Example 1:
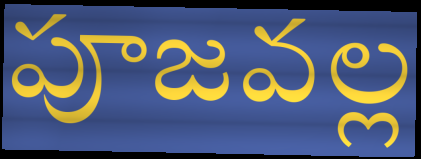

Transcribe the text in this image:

పూజవల్ల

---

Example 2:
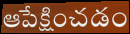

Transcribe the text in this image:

ఆపేక్షించడం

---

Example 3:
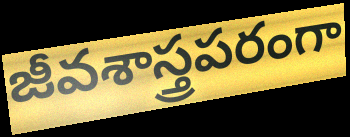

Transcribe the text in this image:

జీవశాస్త్రపరంగా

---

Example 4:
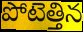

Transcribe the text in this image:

పోటెత్తిన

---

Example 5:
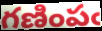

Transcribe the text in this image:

గణింపఁ